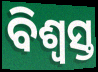
ବିଶ୍ଵସ୍ତ